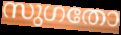
സുഗതോ